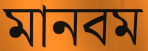
মানবম